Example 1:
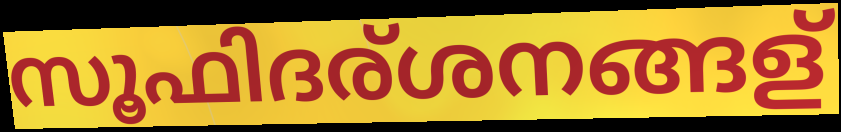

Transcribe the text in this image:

സൂഫിദര്ശനങ്ങള്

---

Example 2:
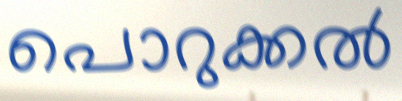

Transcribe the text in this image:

പൊറുക്കൽ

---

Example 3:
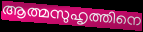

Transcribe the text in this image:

ആത്മസുഹൃത്തിനെ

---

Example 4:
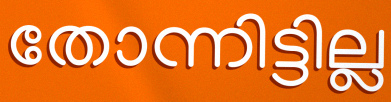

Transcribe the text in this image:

തോന്നിട്ടില്ല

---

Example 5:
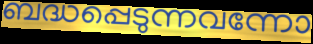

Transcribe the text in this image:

ബദ്ധപ്പെടുന്നവന്നോ